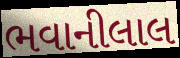
ભવાનીલાલ